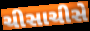
ચીસાચીસે